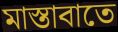
মাস্তাবাতে